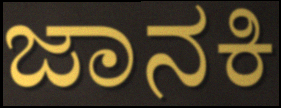
ಜಾನಕಿ